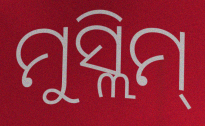
ମୁସ୍ଲିମ୍